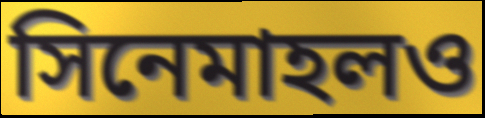
সিনেমাহলও